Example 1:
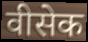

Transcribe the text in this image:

वीसेक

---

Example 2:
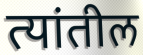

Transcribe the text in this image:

त्‍यांतील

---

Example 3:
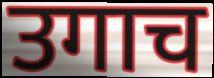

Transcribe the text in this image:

उगाच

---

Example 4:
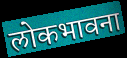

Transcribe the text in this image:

लोकभावना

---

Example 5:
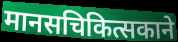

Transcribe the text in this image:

मानसचिकित्सकाने